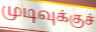
முடிவுக்குச்